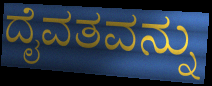
ದೈವತವನ್ನು